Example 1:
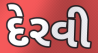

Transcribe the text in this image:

દેરવી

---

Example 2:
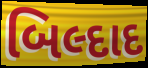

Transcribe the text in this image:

બિલ્દાદ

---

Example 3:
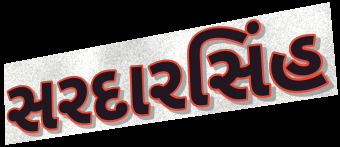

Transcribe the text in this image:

સરદારસિંહ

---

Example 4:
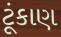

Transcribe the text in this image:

ટૂંકાણ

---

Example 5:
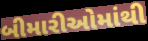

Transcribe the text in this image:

બીમારીઓમાંથી